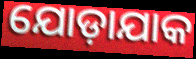
ଯୋଡ଼ାଯାକ